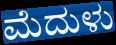
ಮೆದುಳು